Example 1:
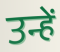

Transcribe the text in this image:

उन्हें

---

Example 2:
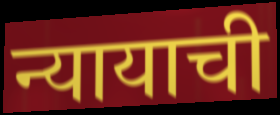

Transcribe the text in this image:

न्यायाची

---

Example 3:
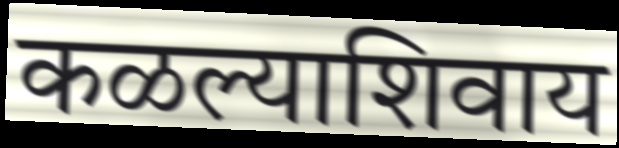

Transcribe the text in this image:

कळल्याशिवाय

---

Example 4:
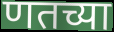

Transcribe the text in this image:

णतच्या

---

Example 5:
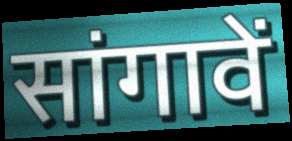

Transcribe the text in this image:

सांगावें